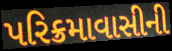
પરિક્રમાવાસીની